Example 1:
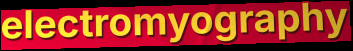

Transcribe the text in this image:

electromyography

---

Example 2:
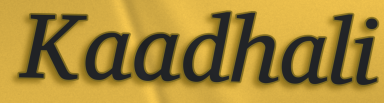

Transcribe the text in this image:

Kaadhali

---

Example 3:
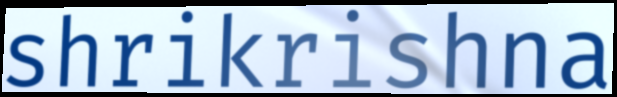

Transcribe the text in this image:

shrikrishna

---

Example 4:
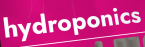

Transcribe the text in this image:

hydroponics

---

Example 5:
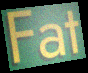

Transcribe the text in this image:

Fat